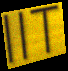
IIT